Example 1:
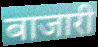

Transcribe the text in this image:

बाजारी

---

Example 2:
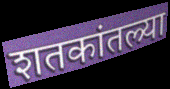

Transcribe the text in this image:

शतकांतल्या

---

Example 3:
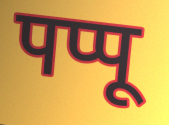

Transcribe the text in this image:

पप्पू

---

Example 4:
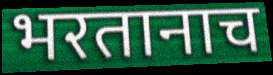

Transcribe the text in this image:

भरतानाच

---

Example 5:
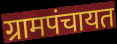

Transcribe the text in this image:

ग्रामपंचायत